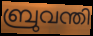
ബ്രുവന്തി